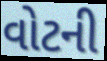
વોટની